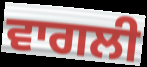
ਵਾਗਲੀ